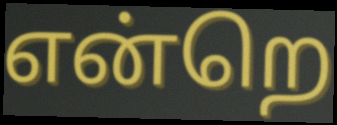
என்றெ